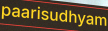
paarisudhyam